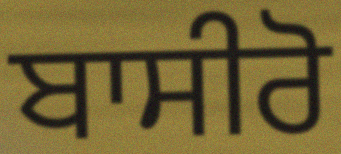
ਬਾਸੀਰੋ